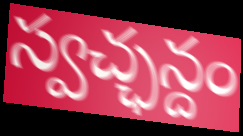
స్వచ్ఛన్దం